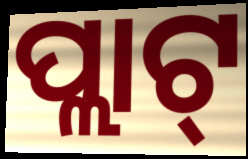
ପ୍ଲାଟ୍